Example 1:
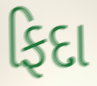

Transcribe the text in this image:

ફિદા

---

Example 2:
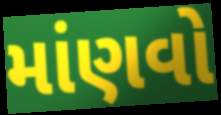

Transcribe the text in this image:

માંણવો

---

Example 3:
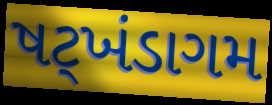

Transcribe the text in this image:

ષટ્ખંડાગમ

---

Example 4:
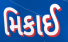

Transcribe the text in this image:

મિકાઈ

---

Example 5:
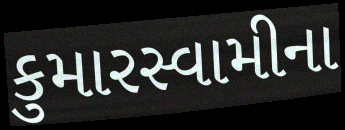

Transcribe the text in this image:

કુમારસ્વામીના